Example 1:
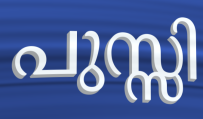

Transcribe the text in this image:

പുസ്സി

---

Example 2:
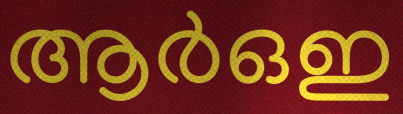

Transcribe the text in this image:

ആർഒഇ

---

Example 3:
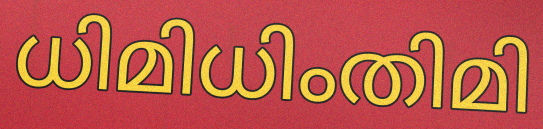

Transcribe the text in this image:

ധിമിധിംതിമി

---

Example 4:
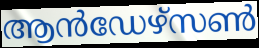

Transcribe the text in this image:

ആൻഡേഴ്സൺ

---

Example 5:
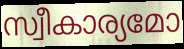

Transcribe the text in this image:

സ്വീകാര്യമോ